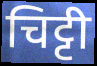
चिट्टी